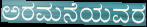
ಅರಮನೆಯವರ